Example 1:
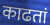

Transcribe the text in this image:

काढतां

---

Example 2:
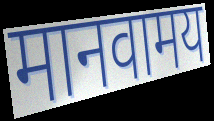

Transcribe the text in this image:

मानवामय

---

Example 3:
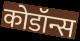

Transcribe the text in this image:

कोडॉन्स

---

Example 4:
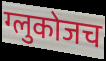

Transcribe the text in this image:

ग्लुकोजच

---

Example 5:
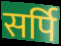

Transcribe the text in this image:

सर्पि